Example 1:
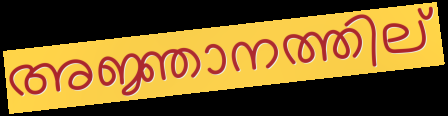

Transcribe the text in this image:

അജ്ഞാനത്തില്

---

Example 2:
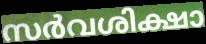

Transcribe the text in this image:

സർവശിക്ഷാ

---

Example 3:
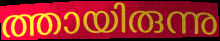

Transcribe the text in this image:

ത്തായിരുന്നു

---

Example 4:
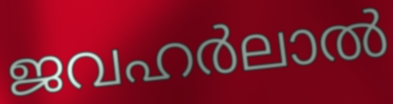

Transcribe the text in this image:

ജവഹർലാൽ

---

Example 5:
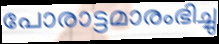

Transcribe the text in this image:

പോരാട്ടമാരംഭിച്ചു